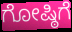
ಗೋಷ್ಠಿಗೆ